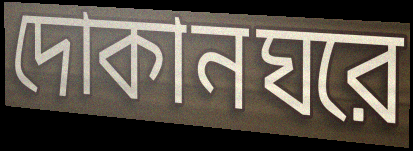
দোকানঘরে